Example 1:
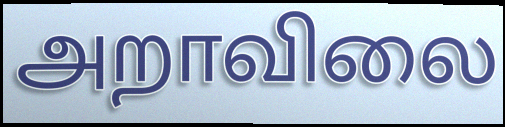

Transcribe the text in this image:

அறாவிலை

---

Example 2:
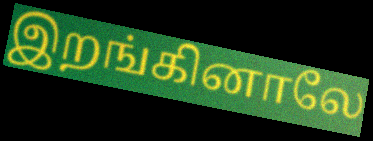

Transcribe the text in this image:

இறங்கினாலே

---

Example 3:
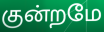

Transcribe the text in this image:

குன்றமே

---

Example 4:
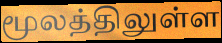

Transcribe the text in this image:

மூலத்திலுள்ள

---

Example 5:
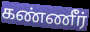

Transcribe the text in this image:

கண்ணீர்